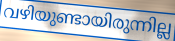
വഴിയുണ്ടായിരുന്നില്ല